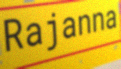
Rajanna